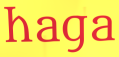
haga